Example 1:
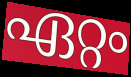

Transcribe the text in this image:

ഏറ്റം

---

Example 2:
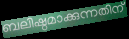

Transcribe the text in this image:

ബലിഷ്ഠമാക്കുന്നതിന്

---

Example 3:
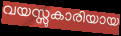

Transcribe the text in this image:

വയസ്സുകാരിയായ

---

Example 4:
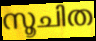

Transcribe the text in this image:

സൂചിത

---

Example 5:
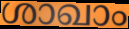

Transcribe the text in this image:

ശാഖാം